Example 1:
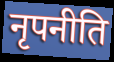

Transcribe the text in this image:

नृपनीति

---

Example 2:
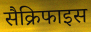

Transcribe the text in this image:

सैक्रिफाइस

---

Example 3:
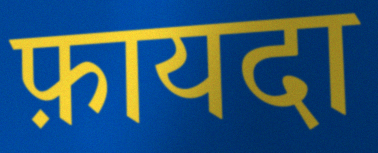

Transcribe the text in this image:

फ़ायदा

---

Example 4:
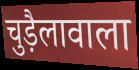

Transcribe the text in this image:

चुड़ैलावाला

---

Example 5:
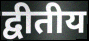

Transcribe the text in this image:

द्वीतीय